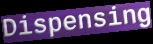
Dispensing